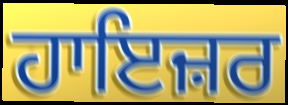
ਹਾਇਜ਼ਰ